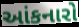
આંકનારો